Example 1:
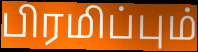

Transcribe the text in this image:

பிரமிப்பும்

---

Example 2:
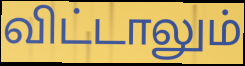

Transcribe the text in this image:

விட்டாலும்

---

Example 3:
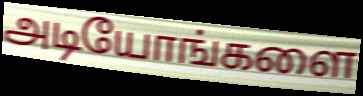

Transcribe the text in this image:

அடியோங்களை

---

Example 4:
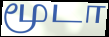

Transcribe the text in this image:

மூடா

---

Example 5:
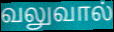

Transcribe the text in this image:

வலுவால்